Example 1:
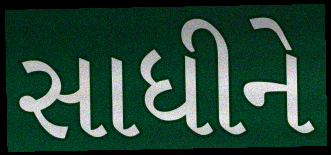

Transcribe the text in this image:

સાધીને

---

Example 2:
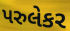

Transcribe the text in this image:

પરુલેકર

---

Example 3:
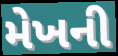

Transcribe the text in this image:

મેખની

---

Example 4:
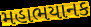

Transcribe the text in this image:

મહાભયાનક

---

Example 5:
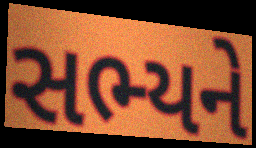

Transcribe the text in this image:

સભ્યને